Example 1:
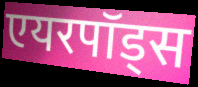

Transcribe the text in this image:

एयरपॉड्स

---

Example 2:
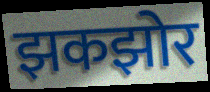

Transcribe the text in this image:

झकझोर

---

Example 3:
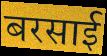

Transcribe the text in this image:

बरसाई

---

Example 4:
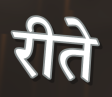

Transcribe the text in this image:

रीते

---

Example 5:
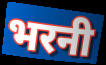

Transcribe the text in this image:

भरनी